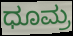
ಧೂಮ್ರ